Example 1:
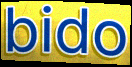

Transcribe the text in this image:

bido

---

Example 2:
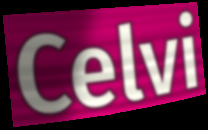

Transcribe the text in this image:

Celvi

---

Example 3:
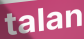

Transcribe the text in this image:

talan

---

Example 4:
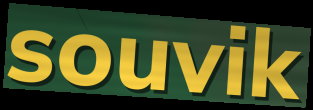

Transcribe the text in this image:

souvik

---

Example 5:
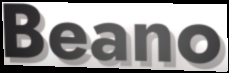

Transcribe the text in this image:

Beano